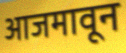
आजमावून